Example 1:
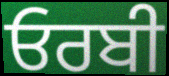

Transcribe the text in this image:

ਓਰਬੀ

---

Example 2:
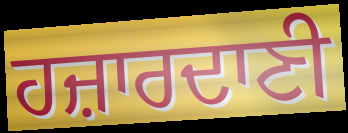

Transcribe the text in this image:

ਹਜ਼ਾਰਦਾਣੀ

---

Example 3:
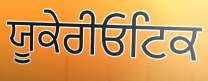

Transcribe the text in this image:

ਯੂਕੇਰੀਓਟਿਕ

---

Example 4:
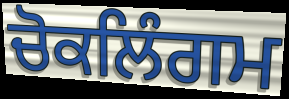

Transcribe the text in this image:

ਚੋਕਲਿੰਗਮ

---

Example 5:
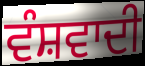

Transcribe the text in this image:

ਵੰਸ਼ਵਾਦੀ